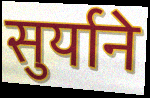
सुर्याने